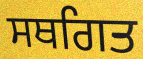
ਸਥਗਿਤ